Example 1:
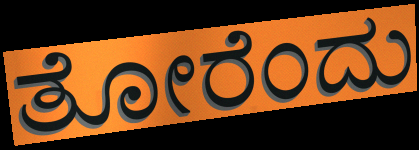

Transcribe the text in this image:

ತೋರೆಂದು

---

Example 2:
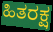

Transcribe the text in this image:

ಹಿತರಕ್ಷ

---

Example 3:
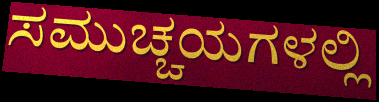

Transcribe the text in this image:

ಸಮುಚ್ಚಯಗಳಲ್ಲಿ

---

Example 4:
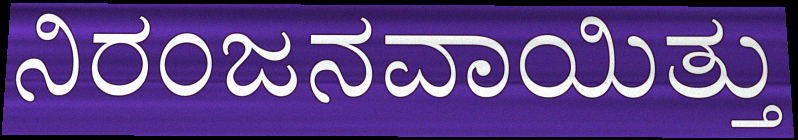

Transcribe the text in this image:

ನಿರಂಜನವಾಯಿತ್ತು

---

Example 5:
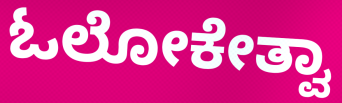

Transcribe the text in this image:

ಓಲೋಕೇತ್ವಾ